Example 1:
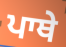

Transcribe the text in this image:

ਪਾਥੇ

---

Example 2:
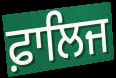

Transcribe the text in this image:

ਫ਼ਾਲਿਜ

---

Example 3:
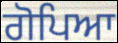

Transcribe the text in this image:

ਗੋਪਿਆ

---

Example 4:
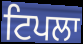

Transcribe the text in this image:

ਟਿਪਲਾ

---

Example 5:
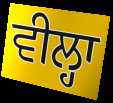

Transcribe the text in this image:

ਵੀਲ੍ਹਾ